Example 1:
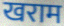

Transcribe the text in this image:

खराम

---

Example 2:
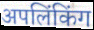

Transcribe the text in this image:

अपलिंकिंग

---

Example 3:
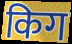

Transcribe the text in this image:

किग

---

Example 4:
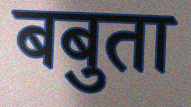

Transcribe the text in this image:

बबुता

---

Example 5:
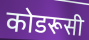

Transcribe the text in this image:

कोडरूसी